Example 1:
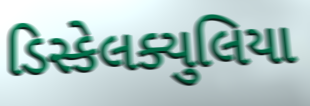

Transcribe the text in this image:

ડિસ્કેલક્યુલિયા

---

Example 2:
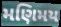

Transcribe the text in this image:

મણિમય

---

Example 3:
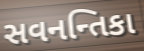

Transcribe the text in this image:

સવનન્તિકા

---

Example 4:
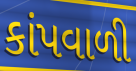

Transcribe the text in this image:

કાંપવાળી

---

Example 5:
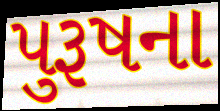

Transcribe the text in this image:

પુરૂષના